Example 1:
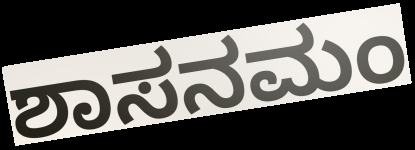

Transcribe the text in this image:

ಶಾಸನಮಂ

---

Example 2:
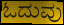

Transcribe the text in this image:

ಓದುವು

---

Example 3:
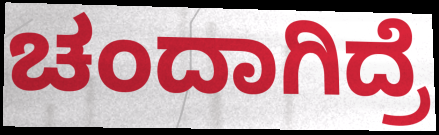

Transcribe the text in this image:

ಚಂದಾಗಿದ್ರೆ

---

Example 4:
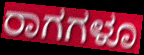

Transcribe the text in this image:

ರಾಗಗಳೂ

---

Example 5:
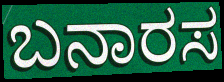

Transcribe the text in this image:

ಬನಾರಸ